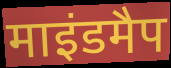
माइंडमैप